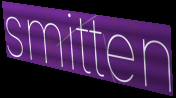
smitten